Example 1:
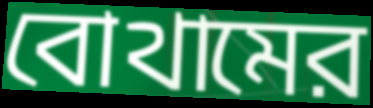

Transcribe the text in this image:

বোথামের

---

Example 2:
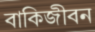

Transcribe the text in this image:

বাকিজীবন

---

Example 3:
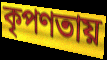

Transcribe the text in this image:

কৃপণতায়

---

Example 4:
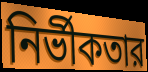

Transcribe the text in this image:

নির্ভীকতার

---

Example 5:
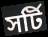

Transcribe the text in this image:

সর্টি